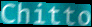
Chitto